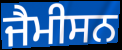
ਜੈਮੀਸਨ